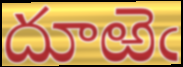
దూఱెఁ